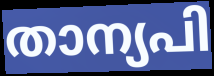
താന്യപി